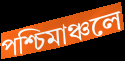
পশ্চিমাঞ্চলে